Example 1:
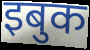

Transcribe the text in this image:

इबुक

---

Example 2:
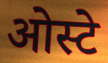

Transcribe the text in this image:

ओस्टे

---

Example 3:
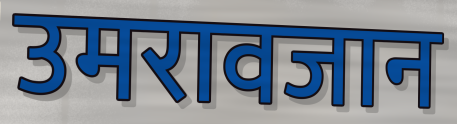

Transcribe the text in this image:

उमरावजान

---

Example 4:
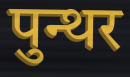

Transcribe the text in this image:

पुन्थर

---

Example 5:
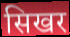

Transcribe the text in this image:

सिखर